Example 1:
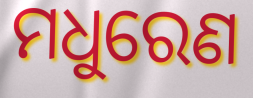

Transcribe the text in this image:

ମଧୁରେଣ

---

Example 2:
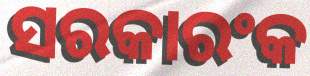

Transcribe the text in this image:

ସରକାରଂକ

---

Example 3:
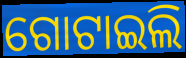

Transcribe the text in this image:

ଗୋଟାଇଲି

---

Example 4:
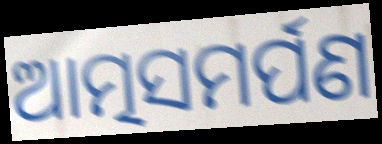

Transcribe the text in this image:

ଆତ୍ମସମର୍ପଣ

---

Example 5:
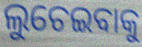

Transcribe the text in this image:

ଲୁଚେଇବାକୁ